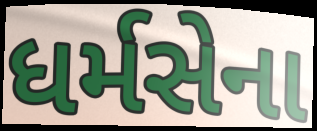
ધર્મસેના